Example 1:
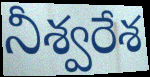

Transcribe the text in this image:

నీశ్వరేశ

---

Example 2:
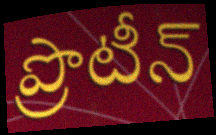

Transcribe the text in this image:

ప్రొటీన్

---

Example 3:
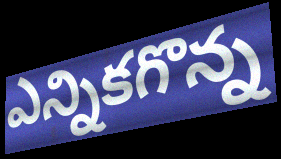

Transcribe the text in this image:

ఎన్నికగొన్న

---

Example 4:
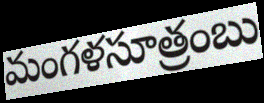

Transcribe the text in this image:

మంగళసూత్రంబు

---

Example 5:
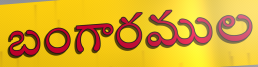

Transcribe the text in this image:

బంగారముల